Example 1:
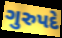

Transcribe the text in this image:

ગુરુપદે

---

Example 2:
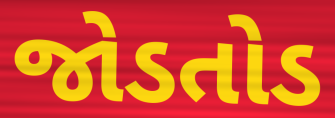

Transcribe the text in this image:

જોડતોડ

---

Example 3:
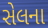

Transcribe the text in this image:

સેલના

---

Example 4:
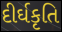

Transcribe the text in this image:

દીર્ઘકૃતિ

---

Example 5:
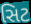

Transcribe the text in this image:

સિટ